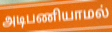
அடிபணியாமல்